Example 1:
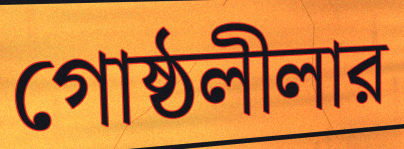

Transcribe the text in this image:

গোষ্ঠলীলার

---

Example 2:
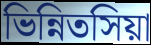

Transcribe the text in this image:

ভিন্নিতসিয়া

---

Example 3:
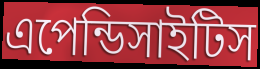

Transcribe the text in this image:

এপেন্ডিসাইটিস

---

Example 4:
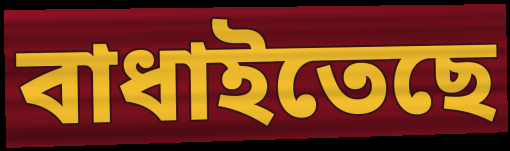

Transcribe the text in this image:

বাধাইতেছে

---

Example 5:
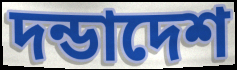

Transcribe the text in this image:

দন্ডাদেশ